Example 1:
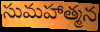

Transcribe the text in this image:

సుమహాత్మన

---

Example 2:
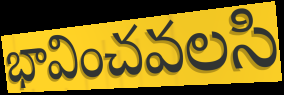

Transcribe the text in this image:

భావించవలసి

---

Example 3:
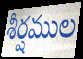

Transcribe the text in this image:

శీర్షముల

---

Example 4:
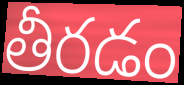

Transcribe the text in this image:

తీరడం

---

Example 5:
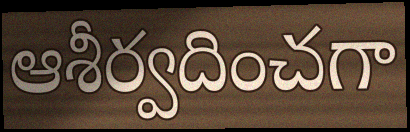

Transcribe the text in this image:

ఆశీర్వదించగా